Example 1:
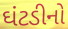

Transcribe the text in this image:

ઘંટડીનો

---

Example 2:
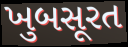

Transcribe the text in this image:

ખુબસૂરત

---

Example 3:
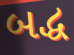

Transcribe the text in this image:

બદ્ધ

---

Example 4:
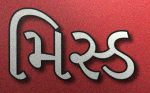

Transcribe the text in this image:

મિસ્ડ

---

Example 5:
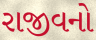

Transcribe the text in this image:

રાજીવનો